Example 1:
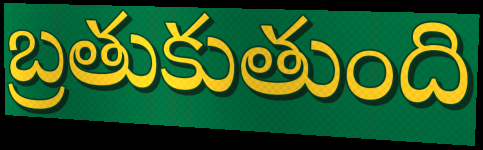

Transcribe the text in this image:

బ్రతుకుతుంది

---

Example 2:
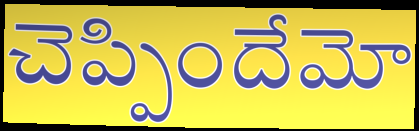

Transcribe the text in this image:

చెప్పిందేమో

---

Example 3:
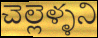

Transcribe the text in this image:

చెల్లెళ్ళని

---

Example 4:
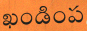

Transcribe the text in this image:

ఖండింప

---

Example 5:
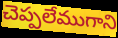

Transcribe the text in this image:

చెప్పలేముగాని